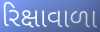
રિક્ષાવાળા